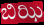
ಬಿಝಿ